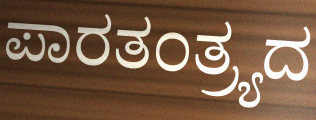
ಪಾರತಂತ್ರ್ಯದ